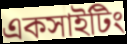
একসাইটিং